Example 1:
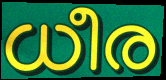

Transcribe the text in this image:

ധീര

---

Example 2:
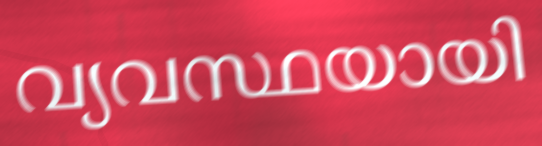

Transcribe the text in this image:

വ്യവസ്ഥയായി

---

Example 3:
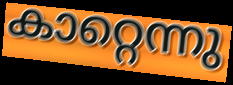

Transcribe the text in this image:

കാറ്റെന്നു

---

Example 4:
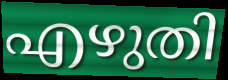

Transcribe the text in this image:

എഴുതി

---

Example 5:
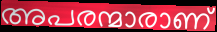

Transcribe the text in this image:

അപരന്മാരാണ്